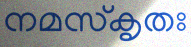
നമസ്കൃതഃ